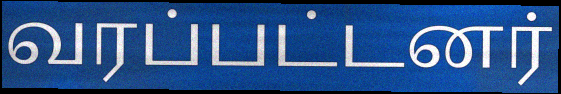
வரப்பட்டனர்